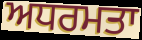
ਅਧਰਮਤਾ